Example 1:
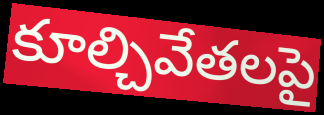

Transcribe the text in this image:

కూల్చివేతలపై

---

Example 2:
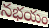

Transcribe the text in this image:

నభయం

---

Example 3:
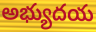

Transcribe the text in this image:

అభ్యుదయ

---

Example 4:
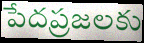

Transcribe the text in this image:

పేదప్రజలకు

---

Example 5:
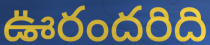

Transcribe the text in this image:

ఊరందరిది